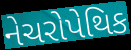
નેચરોપેથિક